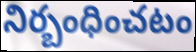
నిర్బంధించటం